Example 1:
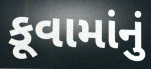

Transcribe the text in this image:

કૂવામાંનું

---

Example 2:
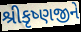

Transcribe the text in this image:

શ્રીકૃષ્ણજીને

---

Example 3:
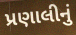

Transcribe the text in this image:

પ્રણાલીનું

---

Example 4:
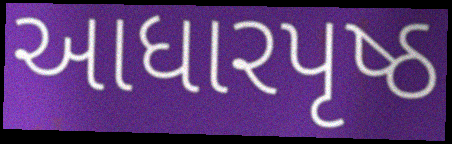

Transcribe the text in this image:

આધારપૃષ્ઠ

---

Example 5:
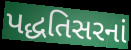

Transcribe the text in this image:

પદ્ધતિસરનાં